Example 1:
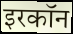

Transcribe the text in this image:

इरकॉन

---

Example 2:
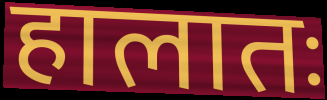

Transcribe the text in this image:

हालातः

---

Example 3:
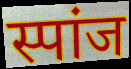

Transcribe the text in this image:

स्पांज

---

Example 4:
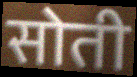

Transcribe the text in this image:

सोती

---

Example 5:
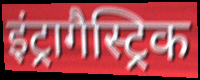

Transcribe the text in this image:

इंट्रागैस्ट्रिक